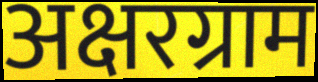
अक्षरग्राम